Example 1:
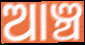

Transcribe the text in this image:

ଆଞ୍ଚ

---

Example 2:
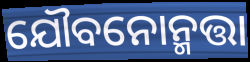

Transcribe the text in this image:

ଯୌବନୋନ୍ମତ୍ତା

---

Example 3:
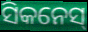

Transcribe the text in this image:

ସିକନେସ୍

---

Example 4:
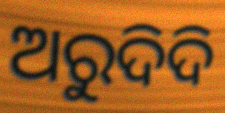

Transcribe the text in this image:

ଅରୁଦିଦି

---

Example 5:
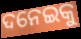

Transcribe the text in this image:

ଦନେଇକୁ